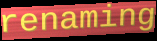
renaming